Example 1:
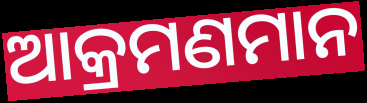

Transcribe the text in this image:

ଆକ୍ରମଣମାନ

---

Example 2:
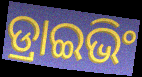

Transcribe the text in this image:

ଡ୍ରାଇଭିଂ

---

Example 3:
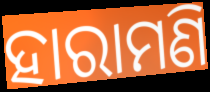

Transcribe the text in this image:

ହାରାମଣି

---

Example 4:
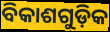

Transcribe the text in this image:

ବିକାଶଗୁଡ଼ିକ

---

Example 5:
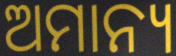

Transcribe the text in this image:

ଅମାନ୍ଯ